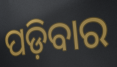
ପଡ଼ିବାର